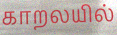
காறலயில்